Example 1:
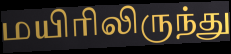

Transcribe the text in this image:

மயிரிலிருந்து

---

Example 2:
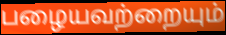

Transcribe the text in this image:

பழையவற்றையும்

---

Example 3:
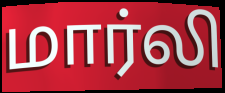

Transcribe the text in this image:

மார்லி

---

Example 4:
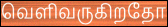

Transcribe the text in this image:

வெளிவருகிறதோ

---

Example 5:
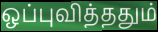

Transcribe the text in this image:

ஒப்புவித்ததும்